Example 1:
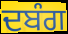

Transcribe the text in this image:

ਦਬੰਗ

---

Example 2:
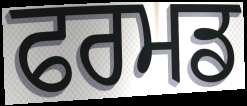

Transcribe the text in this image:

ਫਰਮਡ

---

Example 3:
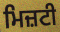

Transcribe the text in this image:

ਮਿਜ਼ਟੀ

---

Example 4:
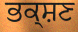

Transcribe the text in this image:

ਭਕ੍ਸ਼ਣ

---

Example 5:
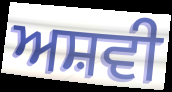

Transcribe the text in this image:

ਅਸ਼ਵੀ